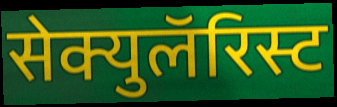
सेक्युलॅरिस्ट